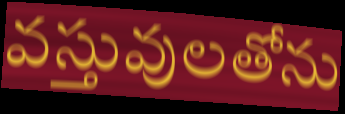
వస్తువులతోను